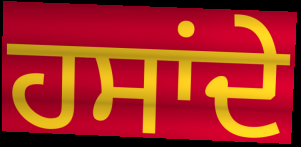
ਹਸਾਂਦੇ